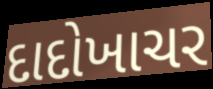
દાદોખાચર